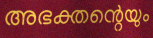
അഭക്തന്റെയും